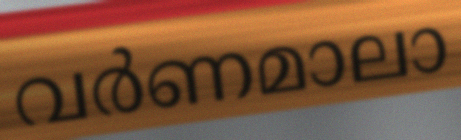
വർണമാലാ